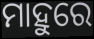
ମାହୁରେ